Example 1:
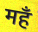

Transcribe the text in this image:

महँ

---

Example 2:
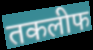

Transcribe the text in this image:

तकलीफ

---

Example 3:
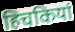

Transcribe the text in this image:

हिचकियां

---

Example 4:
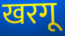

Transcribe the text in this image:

खरगू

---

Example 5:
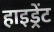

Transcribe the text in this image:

हाइड्रेंट